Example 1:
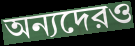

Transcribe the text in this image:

অন্যদেরও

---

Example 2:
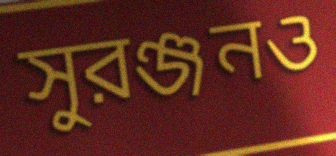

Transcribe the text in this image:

সুরঞ্জনও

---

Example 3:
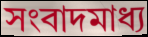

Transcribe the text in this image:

সংবাদমাধ্য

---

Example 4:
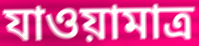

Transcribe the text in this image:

যাওয়ামাত্র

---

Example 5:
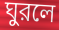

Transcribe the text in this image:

ঘুরলে